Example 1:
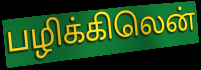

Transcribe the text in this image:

பழிக்கிலென்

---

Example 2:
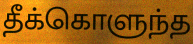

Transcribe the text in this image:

தீக்கொளுந்த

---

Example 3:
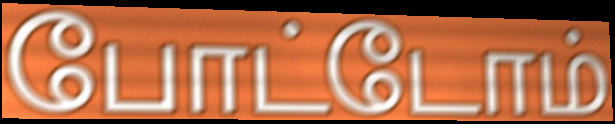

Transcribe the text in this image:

போட்டோம்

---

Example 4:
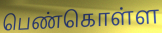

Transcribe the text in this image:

பெண்கொள்ள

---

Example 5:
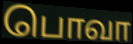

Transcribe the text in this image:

பொவா